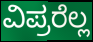
ವಿಪ್ರರೆಲ್ಲ